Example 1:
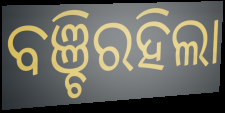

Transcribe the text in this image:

ବଞ୍ଚିରହିଲା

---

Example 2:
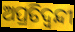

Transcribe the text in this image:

ଅପ୍ରତିଦ୍ବନ୍ଦୀ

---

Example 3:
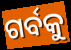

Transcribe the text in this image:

ଗର୍ବକୁ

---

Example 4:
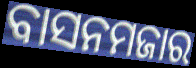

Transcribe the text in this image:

ବାସନମଜାର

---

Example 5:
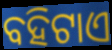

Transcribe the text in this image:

ବହିଟାଏ